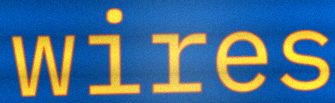
wires